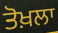
ਤੋਖ਼ਲਾ